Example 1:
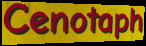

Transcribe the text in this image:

Cenotaph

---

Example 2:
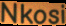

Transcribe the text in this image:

Nkosi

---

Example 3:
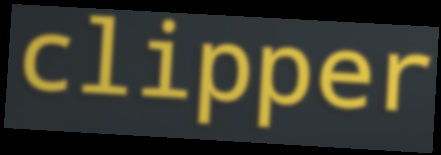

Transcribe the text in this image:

clipper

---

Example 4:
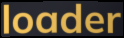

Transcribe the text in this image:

loader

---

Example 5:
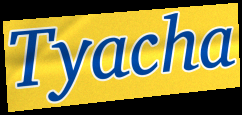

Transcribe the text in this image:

Tyacha